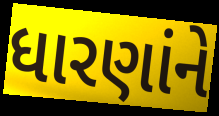
ધારણાંને